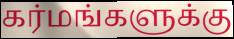
கர்மங்களுக்கு